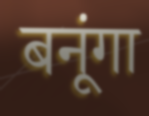
बनूंगा